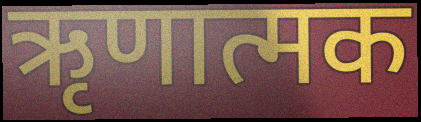
ऋृणात्मक